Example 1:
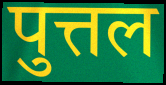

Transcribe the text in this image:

पुत्तल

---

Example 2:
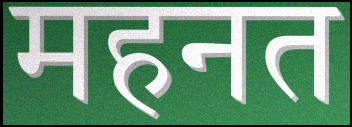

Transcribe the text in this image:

महनत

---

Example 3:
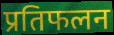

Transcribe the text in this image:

प्रतिफलन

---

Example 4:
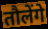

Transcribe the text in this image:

तौलेंगे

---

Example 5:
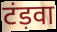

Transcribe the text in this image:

टंड़वा